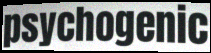
psychogenic